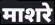
माशरे